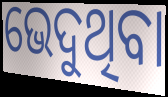
ଭେଦୁଥିବା